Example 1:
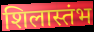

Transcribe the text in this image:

शिलास्तंभ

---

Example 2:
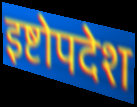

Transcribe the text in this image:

इष्टोपदेश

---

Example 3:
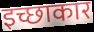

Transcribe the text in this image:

इच्छाकार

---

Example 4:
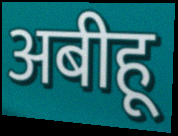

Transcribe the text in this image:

अबीहू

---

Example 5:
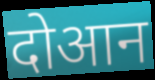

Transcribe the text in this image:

दोआन